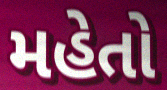
મહેતો